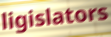
ligislators